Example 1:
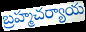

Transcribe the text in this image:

బ్రహ్మచర్యాయ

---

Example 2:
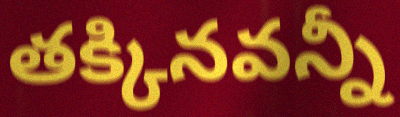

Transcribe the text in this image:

తక్కినవన్నీ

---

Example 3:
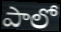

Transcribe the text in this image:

పాలో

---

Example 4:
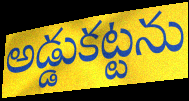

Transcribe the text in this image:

అడ్డుకట్టను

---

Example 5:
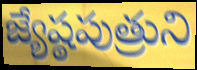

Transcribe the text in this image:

జ్యేష్ఠపుత్రుని